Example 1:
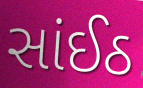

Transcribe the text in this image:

સાંઈઠ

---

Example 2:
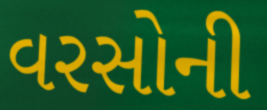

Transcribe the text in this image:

વરસોની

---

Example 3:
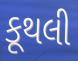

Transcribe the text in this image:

કૂથલી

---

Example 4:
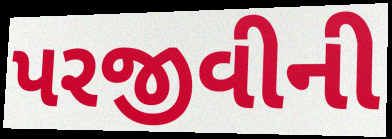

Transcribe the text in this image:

પરજીવીની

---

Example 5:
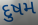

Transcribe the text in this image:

દુષમ